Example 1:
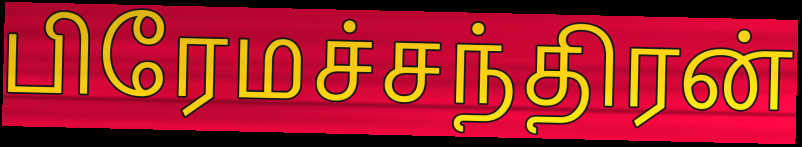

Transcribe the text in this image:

பிரேமச்சந்திரன்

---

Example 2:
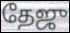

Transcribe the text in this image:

தேஜு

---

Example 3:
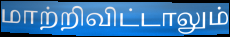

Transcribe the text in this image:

மாற்றிவிட்டாலும்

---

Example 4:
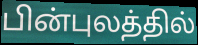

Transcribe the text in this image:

பின்புலத்தில்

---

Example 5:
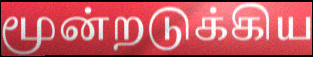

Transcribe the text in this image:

மூன்றடுக்கிய